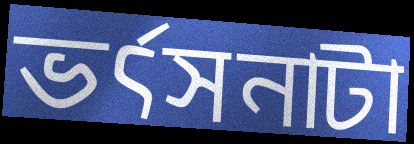
ভর্ৎসনাটা